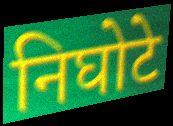
निघोटे